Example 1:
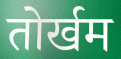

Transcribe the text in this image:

तोर्खम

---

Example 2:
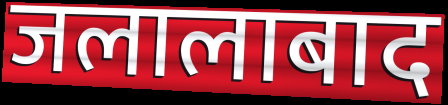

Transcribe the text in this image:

जलालाबाद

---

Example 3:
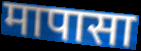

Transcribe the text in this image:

मापासा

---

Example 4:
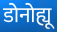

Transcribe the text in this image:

डोनोह्यू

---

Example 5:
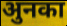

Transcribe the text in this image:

अुनका